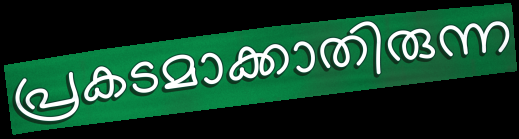
പ്രകടമാക്കാതിരുന്ന